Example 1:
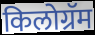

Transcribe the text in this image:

किलोग्रॅम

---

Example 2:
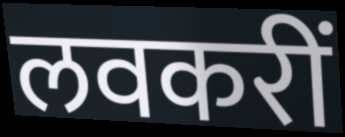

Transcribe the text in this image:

लवकरीं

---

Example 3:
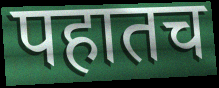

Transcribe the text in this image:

पहातच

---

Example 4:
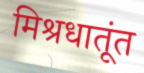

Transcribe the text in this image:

मिश्रधातूंत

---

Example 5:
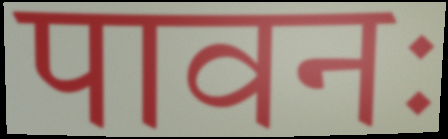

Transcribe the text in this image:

पावनः